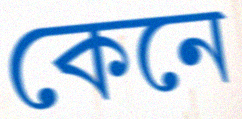
কেনে